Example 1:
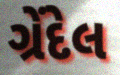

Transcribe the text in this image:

ગ્રેંદેલ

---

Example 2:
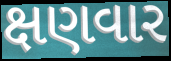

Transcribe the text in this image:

ક્ષણવાર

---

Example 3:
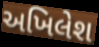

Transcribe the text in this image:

અખિલેશ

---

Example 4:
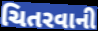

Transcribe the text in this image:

ચિતરવાની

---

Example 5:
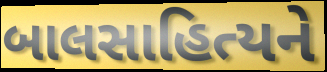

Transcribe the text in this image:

બાલસાહિત્યને